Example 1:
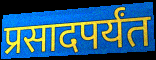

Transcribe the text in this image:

प्रसादपर्यंत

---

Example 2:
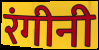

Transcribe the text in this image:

रंगीनी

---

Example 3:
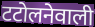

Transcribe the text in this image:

टटोलनेवाली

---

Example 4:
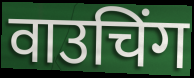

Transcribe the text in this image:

वाउचिंग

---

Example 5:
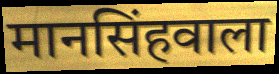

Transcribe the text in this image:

मानसिंहवाला